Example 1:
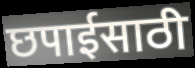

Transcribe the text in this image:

छपाईसाठी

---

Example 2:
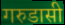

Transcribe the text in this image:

गरुडासी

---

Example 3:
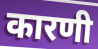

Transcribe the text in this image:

कारणी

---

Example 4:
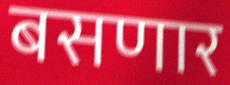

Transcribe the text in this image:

बसणार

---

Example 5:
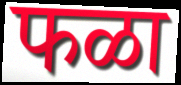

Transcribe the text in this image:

फळा